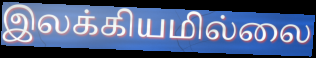
இலக்கியமில்லை